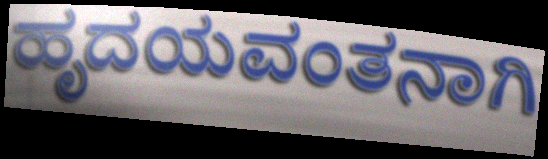
ಹೃದಯವಂತನಾಗಿ